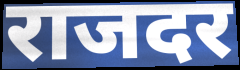
राजदर